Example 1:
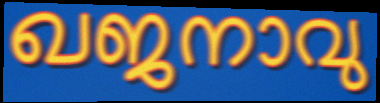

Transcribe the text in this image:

ഖജനാവു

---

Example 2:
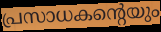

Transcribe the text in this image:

പ്രസാധകന്റെയും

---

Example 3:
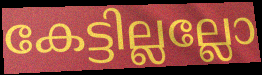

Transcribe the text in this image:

കേട്ടില്ലല്ലോ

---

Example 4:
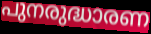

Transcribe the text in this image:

പുനരുദ്ധാരണ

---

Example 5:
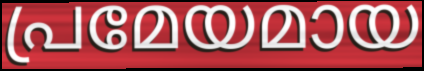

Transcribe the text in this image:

പ്രമേയമായ